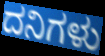
ದನಿಗಳು